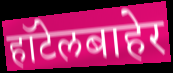
हॉटेलबाहेर